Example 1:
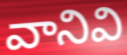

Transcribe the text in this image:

వానివి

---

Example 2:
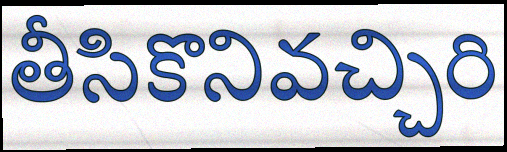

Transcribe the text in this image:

తీసికొనివచ్చిరి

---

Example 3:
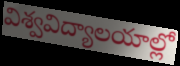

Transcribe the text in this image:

విశ్వవిద్యాలయాల్లో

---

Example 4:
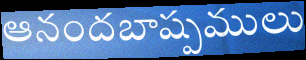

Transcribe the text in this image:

ఆనందబాష్పములు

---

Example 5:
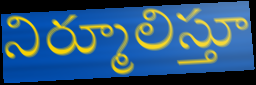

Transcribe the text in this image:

నిర్మూలిస్తూ